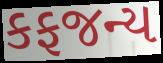
કફજન્ય